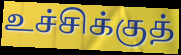
உச்சிக்குத்